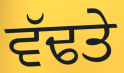
ਵੱਢਤੇ